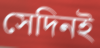
সেদিনই